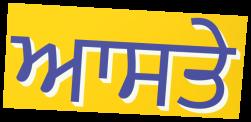
ਆਸਤੇ